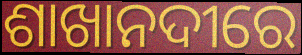
ଶାଖାନଦୀରେ